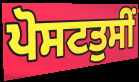
ਪੋਸਟਤੁਸੀਂ